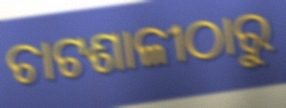
ଚାଟଶାଳୀଠାରୁ